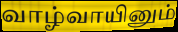
வாழ்வாயினும்